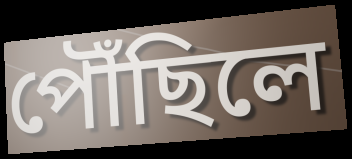
পৌঁছিলে